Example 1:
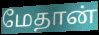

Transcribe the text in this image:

மேதான்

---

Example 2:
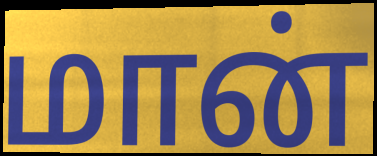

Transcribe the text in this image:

மான்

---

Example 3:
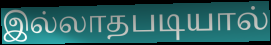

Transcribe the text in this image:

இல்லாதபடியால்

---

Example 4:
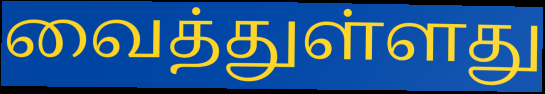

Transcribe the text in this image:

வைத்துள்ளது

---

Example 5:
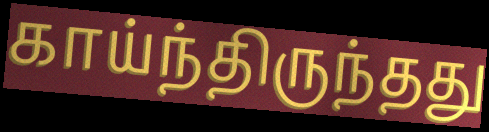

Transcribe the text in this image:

காய்ந்திருந்தது